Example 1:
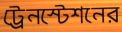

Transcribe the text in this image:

ট্রেনস্টেশনের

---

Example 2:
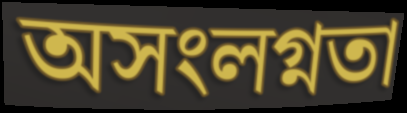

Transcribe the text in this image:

অসংলগ্নতা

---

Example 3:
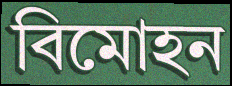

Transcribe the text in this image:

বিমোহন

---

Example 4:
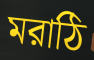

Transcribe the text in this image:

মরাঠি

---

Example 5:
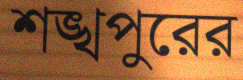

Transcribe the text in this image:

শঙ্খপুরের